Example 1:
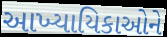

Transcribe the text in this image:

આખ્યાયિકાઓને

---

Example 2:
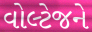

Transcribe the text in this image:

વોલ્ટેજને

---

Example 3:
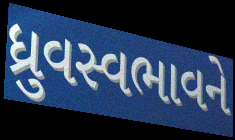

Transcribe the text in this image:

ધ્રુવસ્વભાવને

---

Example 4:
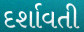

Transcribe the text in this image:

દર્શાવતી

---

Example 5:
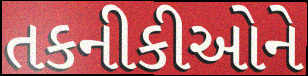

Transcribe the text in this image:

તકનીકીઓને